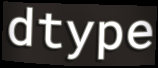
dtype